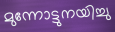
മുന്നോട്ടുനയിച്ചു